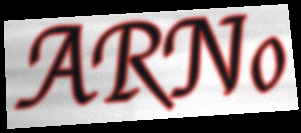
ARNo